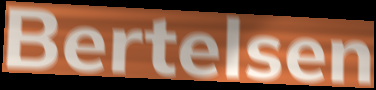
Bertelsen